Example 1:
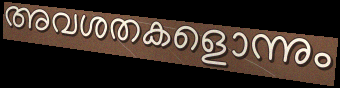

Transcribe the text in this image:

അവശതകളൊന്നും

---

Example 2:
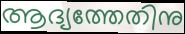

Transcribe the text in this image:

ആദ്യത്തേതിനു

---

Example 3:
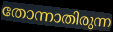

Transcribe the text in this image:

തോന്നാതിരുന്ന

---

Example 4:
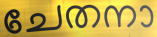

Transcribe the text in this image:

ചേതനാ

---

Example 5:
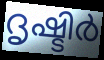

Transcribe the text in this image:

ദൃഷ്ടിർ